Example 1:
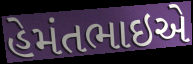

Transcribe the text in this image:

હેમંતભાઇએ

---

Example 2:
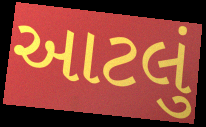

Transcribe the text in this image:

આટલું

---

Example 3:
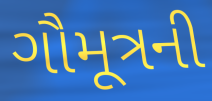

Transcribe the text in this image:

ગૌમૂત્રની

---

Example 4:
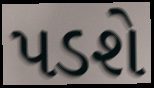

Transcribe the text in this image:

પડશે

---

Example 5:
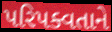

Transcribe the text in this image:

પરિપક્વતાને